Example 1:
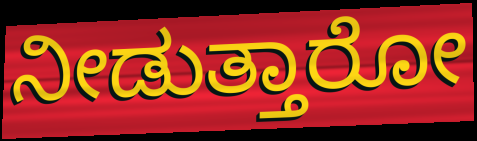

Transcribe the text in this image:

ನೀಡುತ್ತಾರೋ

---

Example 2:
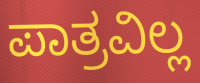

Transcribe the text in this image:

ಪಾತ್ರವಿಲ್ಲ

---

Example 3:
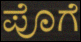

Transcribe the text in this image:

ಪೊಗೆ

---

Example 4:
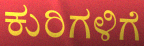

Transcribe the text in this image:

ಕುರಿಗಳಿಗೆ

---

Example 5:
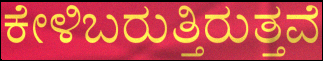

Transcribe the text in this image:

ಕೇಳಿಬರುತ್ತಿರುತ್ತವೆ